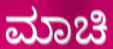
ಮಾಚಿ